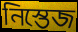
নিস্তেজ